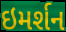
ઇમર્શન